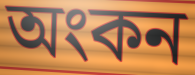
অংকন